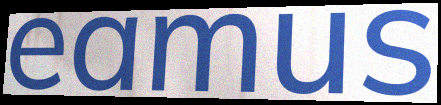
eamus